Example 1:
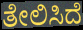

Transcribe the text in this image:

ತೇಲಿಸಿದೆ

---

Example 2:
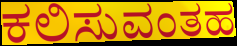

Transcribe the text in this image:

ಕಲಿಸುವಂತಹ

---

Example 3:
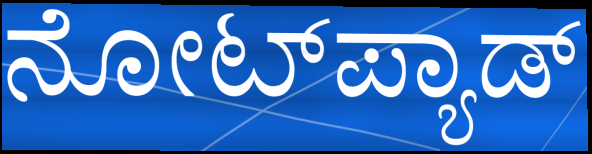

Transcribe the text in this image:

ನೋಟ್‌ಪ್ಯಾಡ್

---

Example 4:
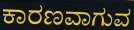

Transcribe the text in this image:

ಕಾರಣವಾಗುವ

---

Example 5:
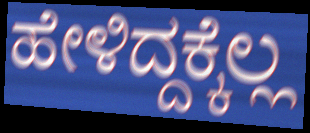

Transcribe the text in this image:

ಹೇಳಿದ್ದಕ್ಕೆಲ್ಲ